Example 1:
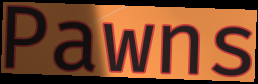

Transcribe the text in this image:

Pawns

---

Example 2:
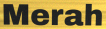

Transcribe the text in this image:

Merah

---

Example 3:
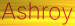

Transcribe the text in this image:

Ashroy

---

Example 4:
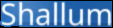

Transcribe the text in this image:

Shallum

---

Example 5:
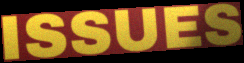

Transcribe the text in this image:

ISSUES